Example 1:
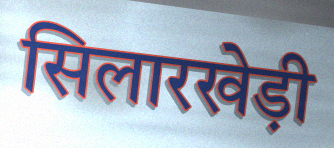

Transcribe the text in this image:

सिलारखेड़ी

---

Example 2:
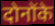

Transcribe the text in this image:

दोनोंके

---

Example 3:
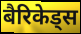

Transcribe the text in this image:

बैरिकेड्स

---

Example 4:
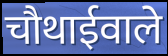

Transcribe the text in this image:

चौथाईवाले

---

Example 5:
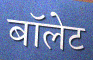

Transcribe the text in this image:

बॉलेट